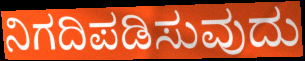
ನಿಗದಿಪಡಿಸುವುದು